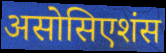
असोसिएशंस